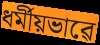
ধৰ্মীয়ভাৱে